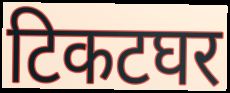
टिकटघर